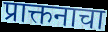
प्राक्तनाचा